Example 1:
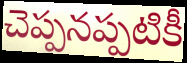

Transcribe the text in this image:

చెప్పనప్పటికీ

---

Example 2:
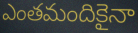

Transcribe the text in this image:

ఎంతమందికైనా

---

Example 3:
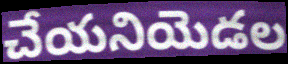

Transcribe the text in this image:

చేయనియెడల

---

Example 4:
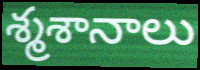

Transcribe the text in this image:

శ్మశానాలు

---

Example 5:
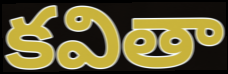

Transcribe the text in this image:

కవితా